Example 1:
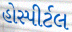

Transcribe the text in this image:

હોસ્પીર્ટલ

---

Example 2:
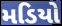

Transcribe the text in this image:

મડિયો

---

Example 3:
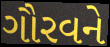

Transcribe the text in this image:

ગૌરવને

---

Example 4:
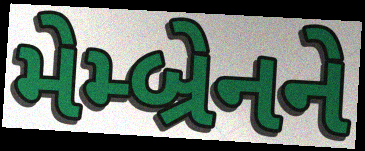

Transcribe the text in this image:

મેમ્બ્રેનને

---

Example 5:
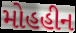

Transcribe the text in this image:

મોહહીન